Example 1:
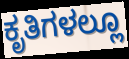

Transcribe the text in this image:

ಕೃತಿಗಳಲ್ಲೂ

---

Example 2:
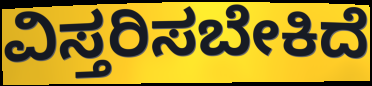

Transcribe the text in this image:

ವಿಸ್ತರಿಸಬೇಕಿದೆ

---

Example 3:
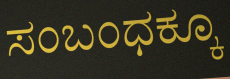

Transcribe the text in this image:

ಸಂಬಂಧಕ್ಕೂ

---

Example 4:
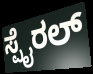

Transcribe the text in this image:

ಸ್ಪೈರಲ್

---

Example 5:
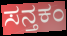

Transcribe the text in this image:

ಸನ್ತಕಂ